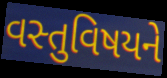
વસ્તુવિષયને